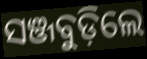
ସଞ୍ଜବୁଡ଼ିଲେ